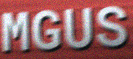
MGUS